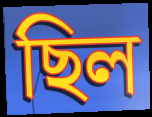
ছিল